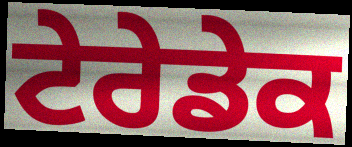
ਟੇਰੇਡੇਕ